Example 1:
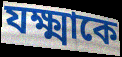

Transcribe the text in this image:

যক্ষ্মাকে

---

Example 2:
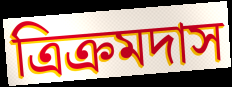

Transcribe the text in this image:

ত্রিক্রমদাস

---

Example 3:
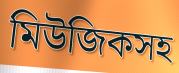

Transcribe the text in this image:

মিউজিকসহ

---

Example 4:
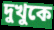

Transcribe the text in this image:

দুখুকে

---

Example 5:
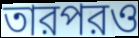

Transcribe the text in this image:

তারপরও